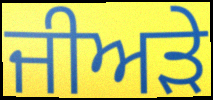
ਜੀਅੜੇ